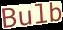
Bulb